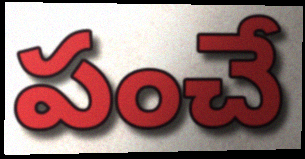
పంచే